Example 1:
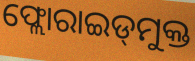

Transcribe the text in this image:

ଫ୍ଲୋରାଇଡ୍‌ମୁକ୍ତ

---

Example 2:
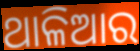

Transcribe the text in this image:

ଥାଳିଆର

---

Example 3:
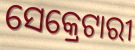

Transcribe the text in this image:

ସେକ୍ରେଟାରୀ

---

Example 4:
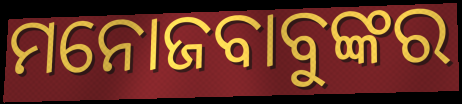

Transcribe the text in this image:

ମନୋଜବାବୁଙ୍କର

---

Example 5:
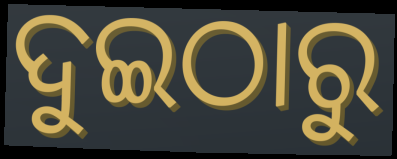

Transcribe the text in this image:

ଦୁଇଠାରୁ